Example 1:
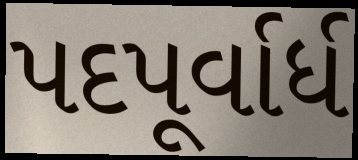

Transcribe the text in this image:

પદપૂર્વાર્ધ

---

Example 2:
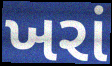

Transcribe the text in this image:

ખરાં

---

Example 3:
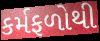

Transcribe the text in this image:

કર્મફળોથી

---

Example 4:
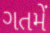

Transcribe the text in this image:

ગતમેં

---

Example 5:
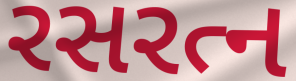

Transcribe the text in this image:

રસરત્ન